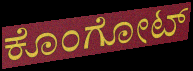
ಕೊಂಗೋಟ್